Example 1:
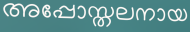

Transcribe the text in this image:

അപ്പോസ്തലനായ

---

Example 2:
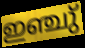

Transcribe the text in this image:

ഇഞ്ചു്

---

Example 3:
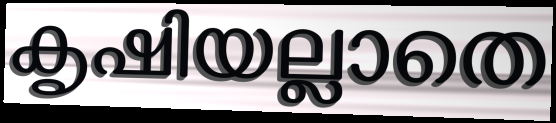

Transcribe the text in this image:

കൃഷിയല്ലാതെ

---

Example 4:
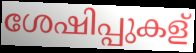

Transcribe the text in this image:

ശേഷിപ്പുകള്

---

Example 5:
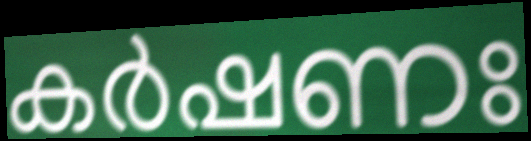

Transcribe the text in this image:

കർഷണഃ